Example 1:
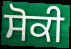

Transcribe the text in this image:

ਸੋਕੀ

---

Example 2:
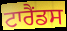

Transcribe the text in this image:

ਟਾਰੈਂਡਸ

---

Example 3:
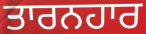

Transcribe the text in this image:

ਤਾਰਨਹਾਰ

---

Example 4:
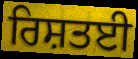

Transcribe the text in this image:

ਰਿਸ਼ਤਈ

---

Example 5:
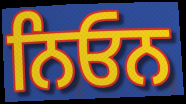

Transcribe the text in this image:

ਨਿਓਨ